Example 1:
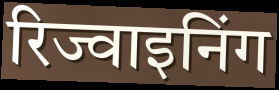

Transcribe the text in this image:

रिज्वाइनिंग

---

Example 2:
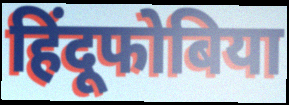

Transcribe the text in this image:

हिंदूफोबिया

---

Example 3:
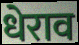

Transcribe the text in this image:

धेराव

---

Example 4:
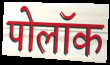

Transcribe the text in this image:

पोलॉक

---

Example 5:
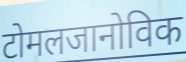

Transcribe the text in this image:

टोमलजानोविक